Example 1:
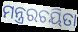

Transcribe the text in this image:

ମନ୍ତ୍ରରଚୟିତା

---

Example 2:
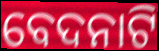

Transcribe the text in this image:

ବେଦନାଟି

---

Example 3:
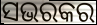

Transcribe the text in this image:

ସଭରକର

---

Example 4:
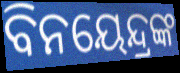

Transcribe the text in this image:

ବିନୟେନ୍ଦ୍ରଙ୍କ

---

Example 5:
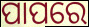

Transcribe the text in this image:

ପାପରେ